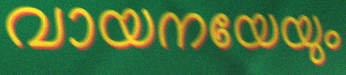
വായനയേയും